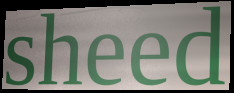
sheed